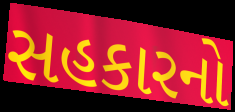
સહકારનો